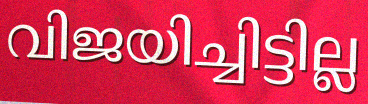
വിജയിച്ചിട്ടില്ല